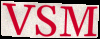
VSM